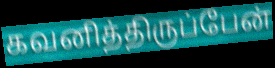
கவனித்திருப்பேன்